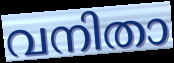
വനിതാ